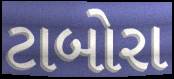
ટાબોરા